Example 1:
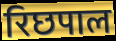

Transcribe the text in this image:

रिछपाल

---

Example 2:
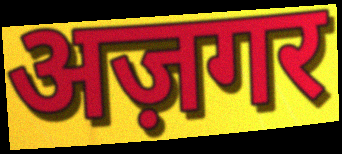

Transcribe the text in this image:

अज़गर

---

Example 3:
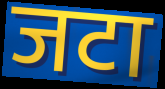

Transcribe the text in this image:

जटा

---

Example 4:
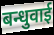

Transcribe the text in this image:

बन्धुवाई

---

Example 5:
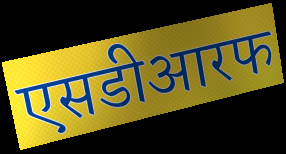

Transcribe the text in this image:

एसडीआरफ